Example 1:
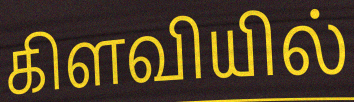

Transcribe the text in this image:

கிளவியில்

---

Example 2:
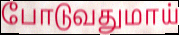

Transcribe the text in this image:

போடுவதுமாய்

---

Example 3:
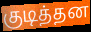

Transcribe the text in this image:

குடித்தன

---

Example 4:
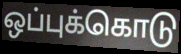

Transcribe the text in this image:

ஒப்புக்கொடு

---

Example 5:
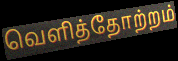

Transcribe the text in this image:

வெளித்தோற்றம்